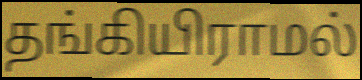
தங்கியிராமல்